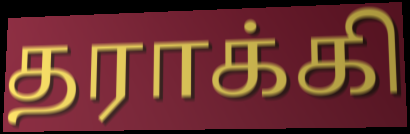
தராக்கி